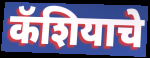
कॅशियाचे